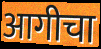
आगीचा